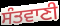
ਸੰਤਵਾਣੀ